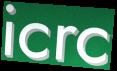
icrc